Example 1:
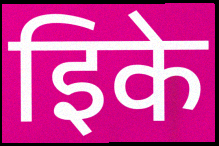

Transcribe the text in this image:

इिके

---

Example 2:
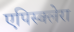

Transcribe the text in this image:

एपिस्क्लेरा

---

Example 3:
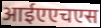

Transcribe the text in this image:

आईएएचएस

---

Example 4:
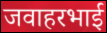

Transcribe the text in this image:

जवाहरभाई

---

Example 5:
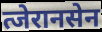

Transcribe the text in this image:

त्जेरानसेन